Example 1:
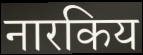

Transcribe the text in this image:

नारकिय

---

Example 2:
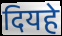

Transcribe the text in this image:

दियहे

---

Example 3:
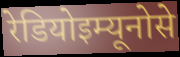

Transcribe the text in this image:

रेडियोइम्यूनोसे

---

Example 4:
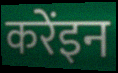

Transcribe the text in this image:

करेंइन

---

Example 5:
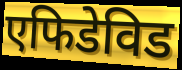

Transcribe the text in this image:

एफिडेविड